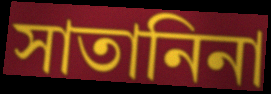
সাতানিনা